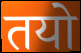
तयो